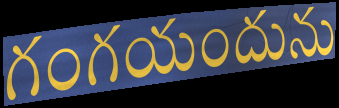
గంగయందును